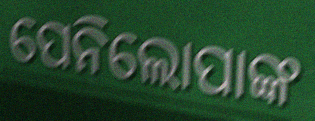
ପେନିଲୋପାଙ୍କ